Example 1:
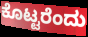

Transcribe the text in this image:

ಕೊಟ್ಟರೆಂದು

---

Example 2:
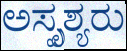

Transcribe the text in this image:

ಅಸ್ಪೃಶ್ಯರು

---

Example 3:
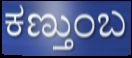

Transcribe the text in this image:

ಕಣ್ತುಂಬ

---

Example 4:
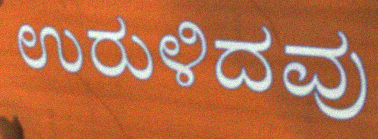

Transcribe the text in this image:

ಉರುಳಿದವು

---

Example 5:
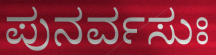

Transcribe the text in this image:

ಪುನರ್ವಸುಃ